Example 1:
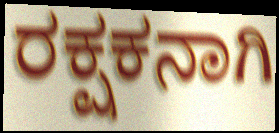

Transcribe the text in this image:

ರಕ್ಷಕನಾಗಿ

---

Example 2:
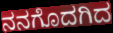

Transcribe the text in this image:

ನನಗೊದಗಿದ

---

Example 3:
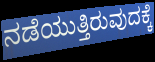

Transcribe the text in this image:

ನಡೆಯುತ್ತಿರುವುದಕ್ಕೆ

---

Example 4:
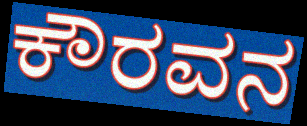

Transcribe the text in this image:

ಕೌರವನ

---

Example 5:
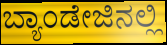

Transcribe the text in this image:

ಬ್ಯಾಂಡೇಜಿನಲ್ಲಿ